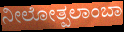
ನೀಲೋತ್ಪಲಾಂಬಾ